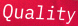
Quality